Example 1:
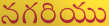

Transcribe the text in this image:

నగరియు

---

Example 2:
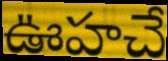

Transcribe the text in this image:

ఊహచే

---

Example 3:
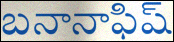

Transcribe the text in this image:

బనానాఫిష్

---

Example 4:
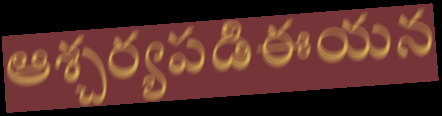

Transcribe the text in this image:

ఆశ్చర్యపడిఈయన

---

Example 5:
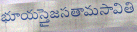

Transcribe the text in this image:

భూయస్తైజసతామసావితి